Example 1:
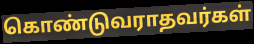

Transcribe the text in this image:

கொண்டுவராதவர்கள்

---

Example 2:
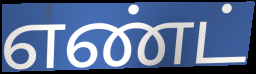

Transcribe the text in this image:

எண்ட்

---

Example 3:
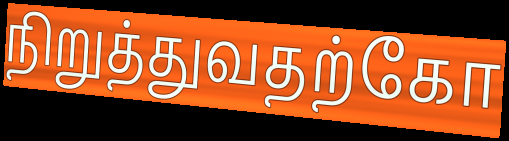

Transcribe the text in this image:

நிறுத்துவதற்கோ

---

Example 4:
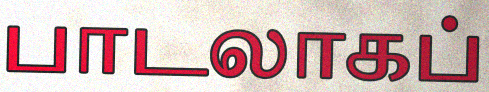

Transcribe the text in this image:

பாடலாகப்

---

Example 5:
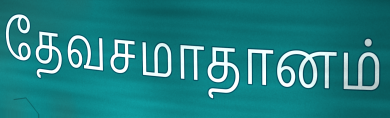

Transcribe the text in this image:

தேவசமாதானம்